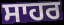
ਸਾਹਰ